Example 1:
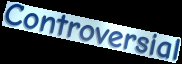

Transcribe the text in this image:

Controversial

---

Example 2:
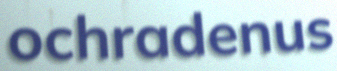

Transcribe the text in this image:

ochradenus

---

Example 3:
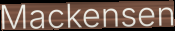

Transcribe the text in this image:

Mackensen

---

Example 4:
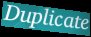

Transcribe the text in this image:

Duplicate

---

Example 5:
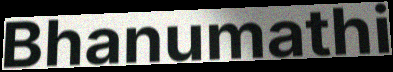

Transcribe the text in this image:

Bhanumathi